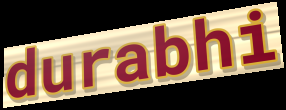
durabhi